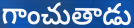
గాంచుతాడు